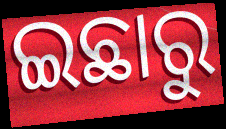
ଇଛାରୁ